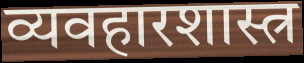
व्यवहारशास्त्र